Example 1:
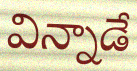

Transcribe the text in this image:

విన్నాడే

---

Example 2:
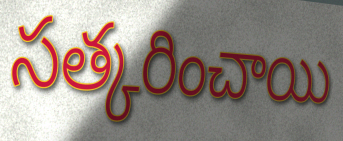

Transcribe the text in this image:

సత్కరించాయి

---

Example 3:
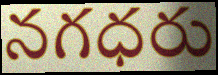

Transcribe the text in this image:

నగధరు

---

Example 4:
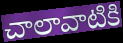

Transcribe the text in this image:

చాలావాటికి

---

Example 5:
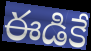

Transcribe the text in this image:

ఈడికే